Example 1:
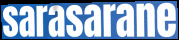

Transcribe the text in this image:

sarasarane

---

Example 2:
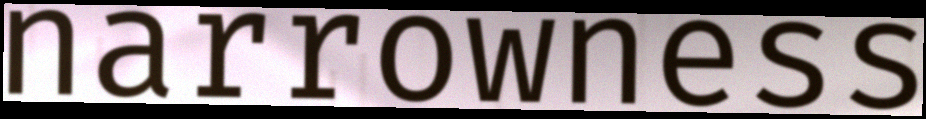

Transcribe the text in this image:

narrowness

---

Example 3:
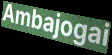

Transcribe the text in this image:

Ambajogai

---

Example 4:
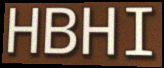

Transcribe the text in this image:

HBHI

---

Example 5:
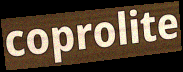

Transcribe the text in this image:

coprolite